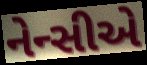
નેન્સીએ